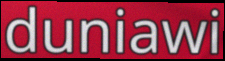
duniawi